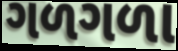
ગળગળા